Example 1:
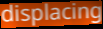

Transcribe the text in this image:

displacing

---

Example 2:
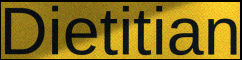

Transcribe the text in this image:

Dietitian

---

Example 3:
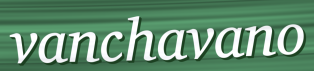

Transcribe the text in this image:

vanchavano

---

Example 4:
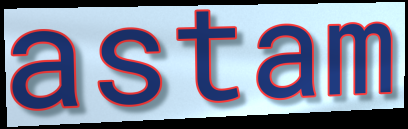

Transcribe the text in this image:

astam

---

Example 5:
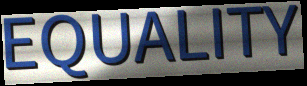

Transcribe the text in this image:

EQUALITY